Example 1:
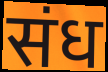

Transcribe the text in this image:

संध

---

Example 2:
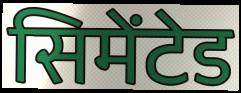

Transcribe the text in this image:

सिमेंटेड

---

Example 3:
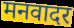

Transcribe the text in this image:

मनवादर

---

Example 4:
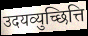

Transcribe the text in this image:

उदयव्युच्छित्ति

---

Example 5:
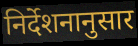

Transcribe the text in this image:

निर्देशनानुसार